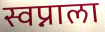
स्वप्नाला